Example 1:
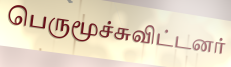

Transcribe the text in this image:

பெருமூச்சுவிட்டனர்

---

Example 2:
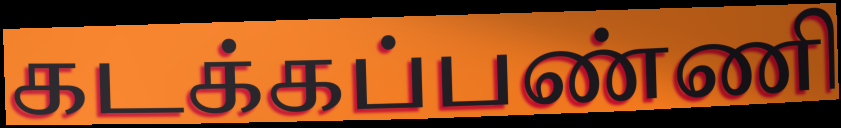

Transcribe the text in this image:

கடக்கப்பண்ணி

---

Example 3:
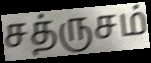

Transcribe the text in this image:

சத்ருசம்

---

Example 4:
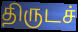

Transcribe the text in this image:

திருடச்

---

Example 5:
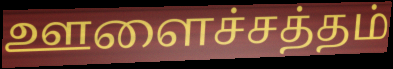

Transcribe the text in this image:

ஊளைச்சத்தம்